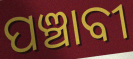
ପଞ୍ଚାବୀ